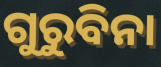
ଗୁରୁବିନା